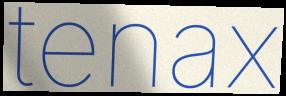
tenax